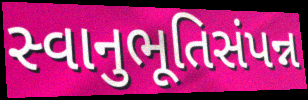
સ્વાનુભૂતિસંપન્ન